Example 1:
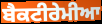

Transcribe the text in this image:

ਬੈਕਟੀਰੇਮੀਆ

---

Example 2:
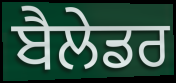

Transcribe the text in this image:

ਬੈਲੇਡਰ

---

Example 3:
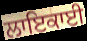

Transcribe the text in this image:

ਲਾਇਕਾਈ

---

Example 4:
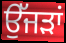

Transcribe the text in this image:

ਉੱਜੜਾਂ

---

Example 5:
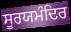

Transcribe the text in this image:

ਸੂਰਯਮੰਦਿਰ